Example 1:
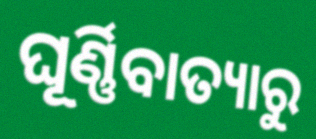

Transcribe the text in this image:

ଘୂର୍ଣ୍ଣିବାତ୍ୟାରୁ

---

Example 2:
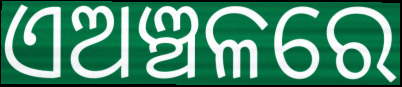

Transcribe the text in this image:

ଏଅଞ୍ଚଳରେ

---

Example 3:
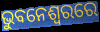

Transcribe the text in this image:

ଭୁବନେଶ୍ବରରେ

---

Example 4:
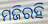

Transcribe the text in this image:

ମଜିରହି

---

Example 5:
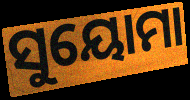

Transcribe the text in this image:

ସୁୟୋମା